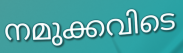
നമുക്കവിടെ